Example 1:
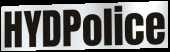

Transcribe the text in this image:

HYDPolice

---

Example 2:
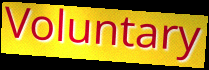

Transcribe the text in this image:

Voluntary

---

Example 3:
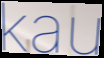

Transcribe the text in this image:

kau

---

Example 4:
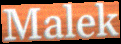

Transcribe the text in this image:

Malek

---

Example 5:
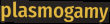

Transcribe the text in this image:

plasmogamy